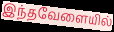
இந்தவேளையில்